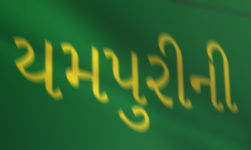
યમપુરીની